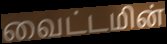
வைட்டமின்